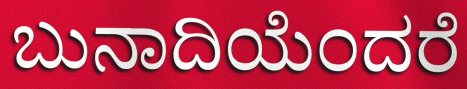
ಬುನಾದಿಯೆಂದರೆ